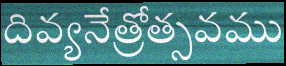
దివ్యనేత్రోత్సవము